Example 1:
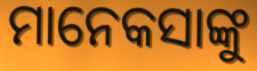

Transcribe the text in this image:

ମାନେକସାଙ୍କୁ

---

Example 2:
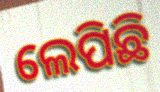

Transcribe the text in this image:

ଲେପିଛି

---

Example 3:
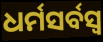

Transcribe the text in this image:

ଧର୍ମସର୍ବସ୍ୱ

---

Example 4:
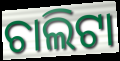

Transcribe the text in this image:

ଚାଲିଟା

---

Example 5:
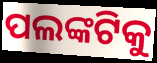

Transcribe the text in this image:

ପଲଙ୍କଟିକୁ